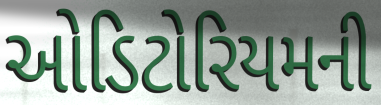
ઓડિટોરિયમની